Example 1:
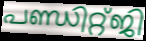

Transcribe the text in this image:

പണ്ഡിറ്റ്ജി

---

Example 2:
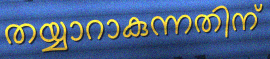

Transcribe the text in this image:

തയ്യാറാകുന്നതിന്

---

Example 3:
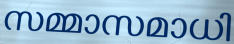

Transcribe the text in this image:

സമ്മാസമാധി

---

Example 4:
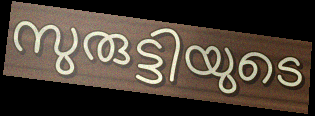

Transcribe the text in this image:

സുരുട്ടിയുടെ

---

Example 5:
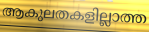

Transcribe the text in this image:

ആകുലതകളില്ലാത്ത